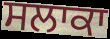
ਸਲਾਕਾ